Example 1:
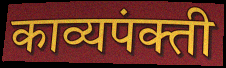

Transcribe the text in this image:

काव्यपंक्ती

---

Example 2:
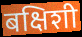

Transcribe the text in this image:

बक्षिशी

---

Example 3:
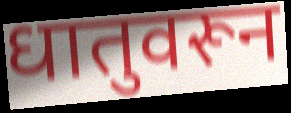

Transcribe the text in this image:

धातुवरून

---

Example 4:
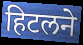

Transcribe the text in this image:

हिटलने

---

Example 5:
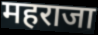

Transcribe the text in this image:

महराजा